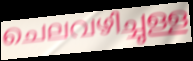
ചെലവഴിച്ചുള്ള